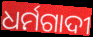
ଧର୍ମଗାଦୀ